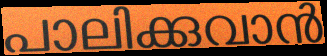
പാലിക്കുവാൻ